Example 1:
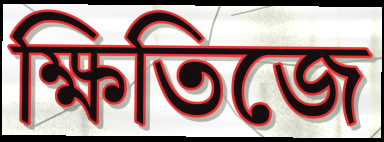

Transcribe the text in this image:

ক্ষিতিজে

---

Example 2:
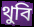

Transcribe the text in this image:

থুবি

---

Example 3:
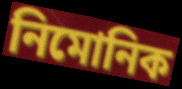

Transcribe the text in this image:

নিমোনিক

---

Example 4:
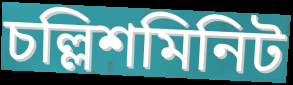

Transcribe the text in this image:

চল্লিশমিনিট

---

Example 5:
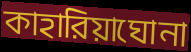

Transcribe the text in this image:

কাহারিয়াঘোনা